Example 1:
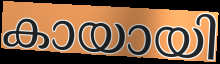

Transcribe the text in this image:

കായായി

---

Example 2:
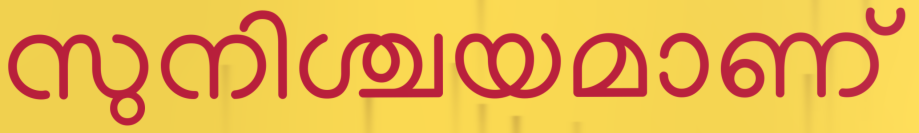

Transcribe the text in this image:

സുനിശ്ചയമാണ്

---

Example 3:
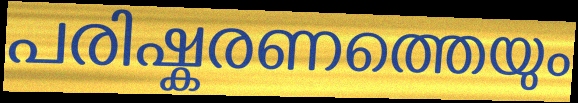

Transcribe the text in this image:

പരിഷ്കരണത്തെയും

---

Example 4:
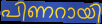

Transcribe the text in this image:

പിണറായി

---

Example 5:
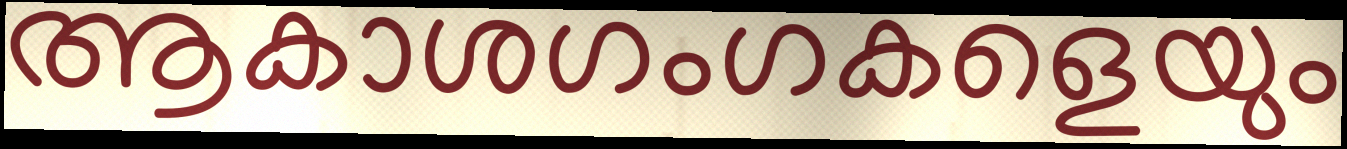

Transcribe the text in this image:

ആകാശഗംഗകളെയും